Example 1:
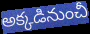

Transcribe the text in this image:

అక్కడినుంచీ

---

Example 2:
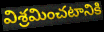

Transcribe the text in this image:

విశ్రమించటానికి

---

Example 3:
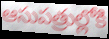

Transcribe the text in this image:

ఆసుపత్రుల్లోకి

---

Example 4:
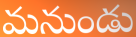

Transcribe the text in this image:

మనుండు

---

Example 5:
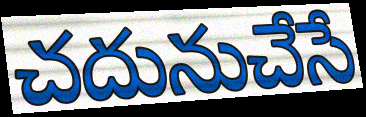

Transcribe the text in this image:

చదునుచేసే